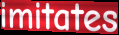
imitates